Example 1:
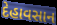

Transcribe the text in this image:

દેહાવસાન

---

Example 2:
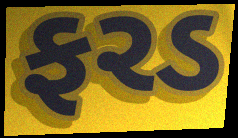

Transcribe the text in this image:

ફરડ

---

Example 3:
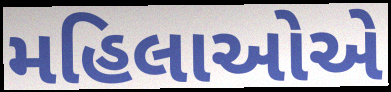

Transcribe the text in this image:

મહિલાઓએ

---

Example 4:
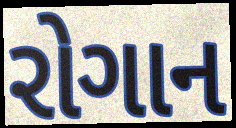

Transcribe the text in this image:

રોગાન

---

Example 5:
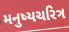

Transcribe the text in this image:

મનુષ્યચરિત્ર